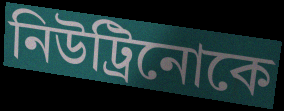
নিউট্রিনোকে